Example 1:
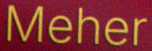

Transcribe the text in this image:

Meher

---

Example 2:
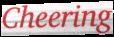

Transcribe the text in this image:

Cheering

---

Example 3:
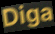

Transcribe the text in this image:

Diga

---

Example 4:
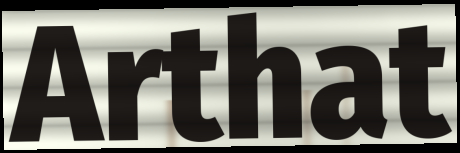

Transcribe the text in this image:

Arthat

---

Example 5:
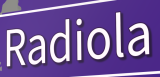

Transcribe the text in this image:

Radiola